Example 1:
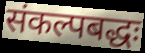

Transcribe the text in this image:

संकल्पबद्धः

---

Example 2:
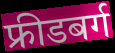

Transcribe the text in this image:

फ्रीडबर्ग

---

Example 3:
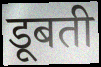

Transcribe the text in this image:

डूबती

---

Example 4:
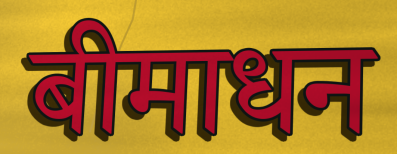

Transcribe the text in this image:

बीमाधन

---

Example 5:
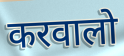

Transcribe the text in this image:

करवालो